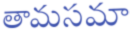
తామసమా